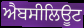
ਐਬਸੀਲਿਊਟ